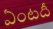
ఏంటదీ